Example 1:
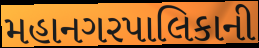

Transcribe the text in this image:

મહાનગરપાલિકાની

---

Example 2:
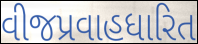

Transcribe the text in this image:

વીજપ્રવાહધારિત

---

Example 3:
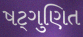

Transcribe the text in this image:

ષટ્ગુણિત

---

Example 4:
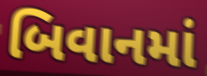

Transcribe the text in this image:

બિવાનમાં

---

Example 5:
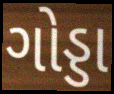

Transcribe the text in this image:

ગોડ્ડા